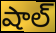
షాల్